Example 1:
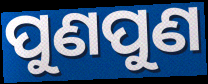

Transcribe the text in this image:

ପୁଣପୁଣ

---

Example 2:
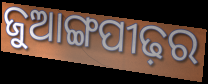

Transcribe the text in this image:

ଜୁଆଙ୍ଗପୀଢ଼ର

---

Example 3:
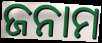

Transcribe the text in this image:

ଜନାମ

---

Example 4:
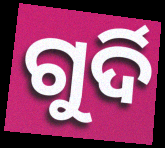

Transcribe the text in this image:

ଗୁର୍ଦି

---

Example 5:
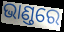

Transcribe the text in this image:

ଭାଣ୍ଡରେ